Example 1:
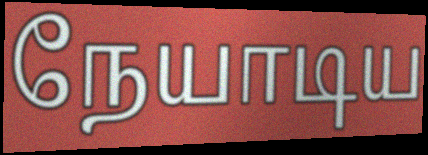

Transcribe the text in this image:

நேயாடிய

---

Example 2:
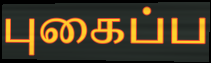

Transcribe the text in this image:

புகைப்ப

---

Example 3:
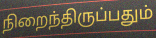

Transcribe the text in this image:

நிறைந்திருப்பதும்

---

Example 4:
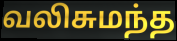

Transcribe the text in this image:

வலிசுமந்த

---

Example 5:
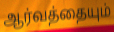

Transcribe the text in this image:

ஆர்வத்தையும்